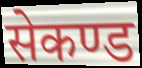
सेकण्ड